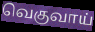
வெகுவாய்